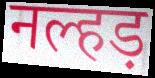
नल्हड़